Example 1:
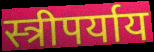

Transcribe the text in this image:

स्त्रीपर्याय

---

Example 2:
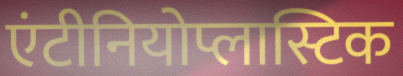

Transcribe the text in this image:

एंटीनियोप्लास्टिक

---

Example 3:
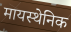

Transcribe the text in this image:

मायस्थेनिक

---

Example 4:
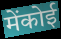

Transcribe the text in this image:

मेंकोई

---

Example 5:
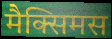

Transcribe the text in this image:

मैक्सिमस